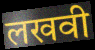
लखवी